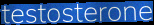
testosterone